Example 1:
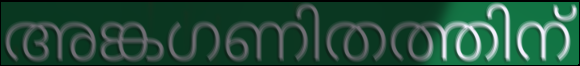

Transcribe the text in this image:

അങ്കഗണിതത്തിന്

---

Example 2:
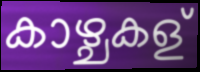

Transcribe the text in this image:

കാഴ്ചകള്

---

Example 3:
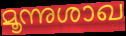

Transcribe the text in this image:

മൂന്നുശാഖ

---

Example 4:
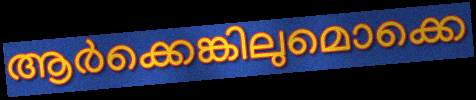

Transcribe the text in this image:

ആർക്കെങ്കിലുമൊക്കെ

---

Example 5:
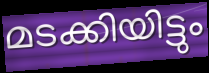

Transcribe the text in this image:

മടക്കിയിട്ടും